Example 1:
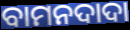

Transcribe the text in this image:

ବାମନଦାଦା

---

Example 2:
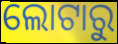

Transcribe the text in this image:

ଲୋଟାରୁ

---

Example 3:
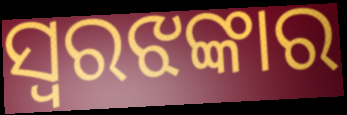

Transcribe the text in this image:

ସ୍ୱରଝଙ୍କାର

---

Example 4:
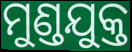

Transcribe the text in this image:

ମୁଣ୍ଡଯୁକ୍ତ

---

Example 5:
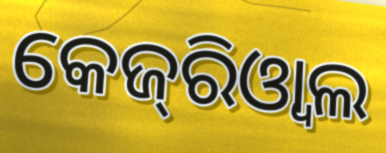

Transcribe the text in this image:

କେଜ୍‌ରିଓ୍ବାଲ